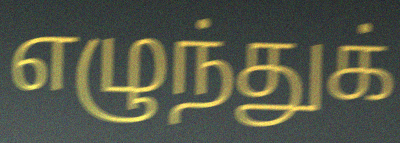
எழுந்துக்